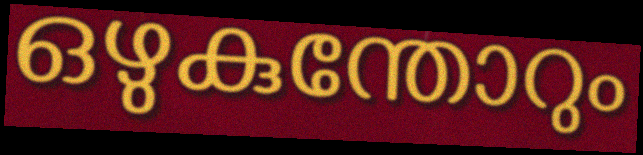
ഒഴുകുന്തോറും